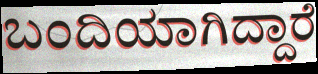
ಬಂದಿಯಾಗಿದ್ದಾರೆ